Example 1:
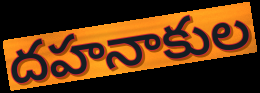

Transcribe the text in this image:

దహనాకుల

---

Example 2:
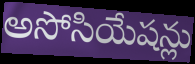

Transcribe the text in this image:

అసోసియేషన్లు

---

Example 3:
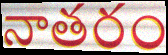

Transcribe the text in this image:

నాతరం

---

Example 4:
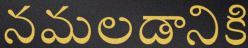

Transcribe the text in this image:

నమలడానికి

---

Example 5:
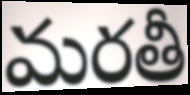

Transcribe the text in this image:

మరతీ